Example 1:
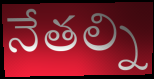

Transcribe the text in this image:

నేతల్ని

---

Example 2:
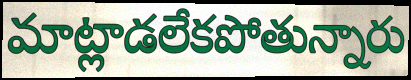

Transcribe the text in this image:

మాట్లాడలేకపోతున్నారు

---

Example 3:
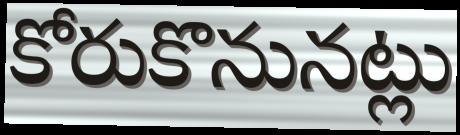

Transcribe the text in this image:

కోరుకొనునట్లు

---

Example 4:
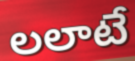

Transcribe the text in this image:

లలాటే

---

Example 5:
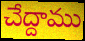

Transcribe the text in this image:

చేద్దాము